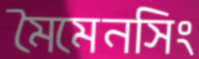
মৈমেনসিং